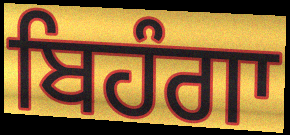
ਬਿਹੰਗਾ